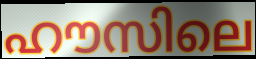
ഹൗസിലെ